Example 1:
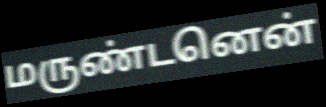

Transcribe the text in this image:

மருண்டனென்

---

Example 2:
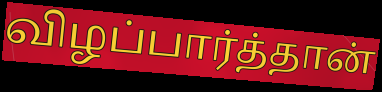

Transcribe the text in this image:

விழப்பார்த்தான்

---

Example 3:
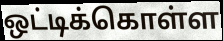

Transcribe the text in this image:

ஒட்டிக்கொள்ள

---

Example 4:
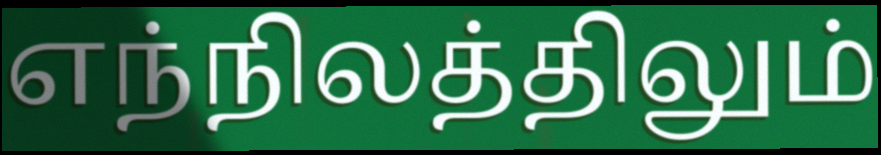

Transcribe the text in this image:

எந்நிலத்திலும்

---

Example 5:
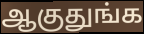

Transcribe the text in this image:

ஆகுதுங்க